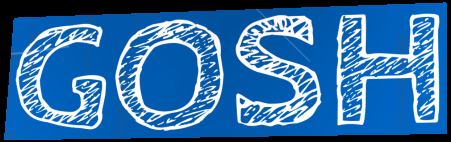
GOSH